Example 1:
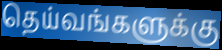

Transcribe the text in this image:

தெய்வங்களுக்கு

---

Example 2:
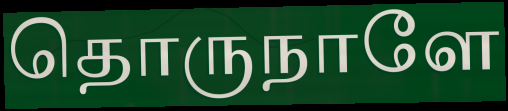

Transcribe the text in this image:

தொருநாளே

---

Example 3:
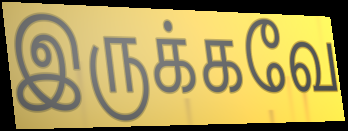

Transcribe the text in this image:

இருக்கவே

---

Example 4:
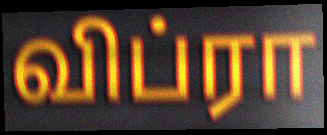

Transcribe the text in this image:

விப்ரா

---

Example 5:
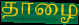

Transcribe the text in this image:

தாழை